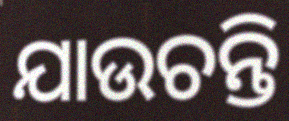
ଯାଉଚନ୍ତି